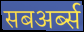
सबअर्ब्स